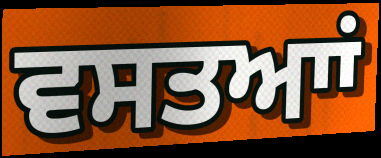
ਵਸਤਆਾਂ